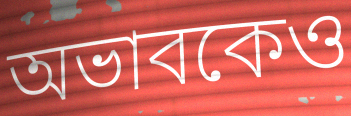
অভাবকেও